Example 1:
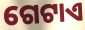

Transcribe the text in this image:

ଗେଟାଏ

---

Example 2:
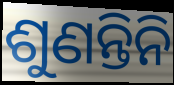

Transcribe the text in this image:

ଶୁଣନ୍ତିନି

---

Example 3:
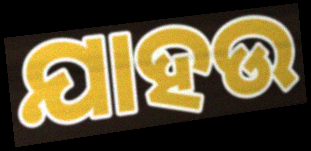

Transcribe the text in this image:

ଯାହଉ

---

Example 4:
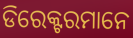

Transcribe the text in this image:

ଡିରେକ୍ଟରମାନେ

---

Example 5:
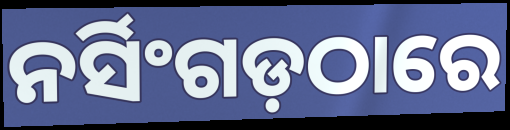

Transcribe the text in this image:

ନର୍ସିଂଗଡ଼ଠାରେ